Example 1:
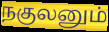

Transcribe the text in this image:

நகுலனும்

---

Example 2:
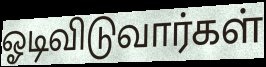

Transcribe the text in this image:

ஓடிவிடுவார்கள்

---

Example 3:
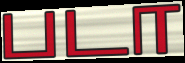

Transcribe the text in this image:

படா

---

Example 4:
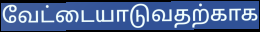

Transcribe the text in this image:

வேட்டையாடுவதற்காக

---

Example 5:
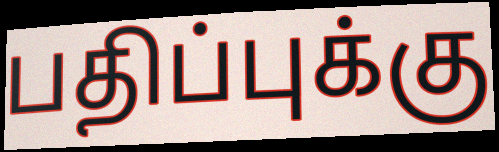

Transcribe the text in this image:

பதிப்புக்கு